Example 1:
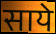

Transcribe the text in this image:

साये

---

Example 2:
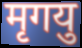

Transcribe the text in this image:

मृगयु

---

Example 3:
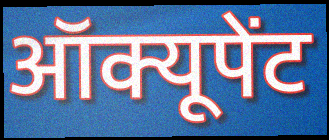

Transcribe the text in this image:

ऑक्यूपेंट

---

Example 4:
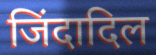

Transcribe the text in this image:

जिंदादिल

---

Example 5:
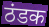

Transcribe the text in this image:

ठंडक